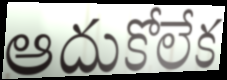
ఆదుకోలేక